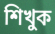
শিখুক